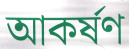
আকৰ্ষণ